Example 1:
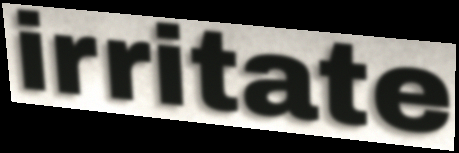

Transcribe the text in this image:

irritate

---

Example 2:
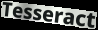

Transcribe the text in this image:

Tesseract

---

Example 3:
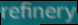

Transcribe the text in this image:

refinery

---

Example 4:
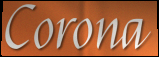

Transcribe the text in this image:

Corona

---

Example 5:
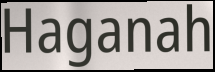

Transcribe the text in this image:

Haganah